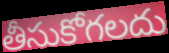
తీసుకోగలదు